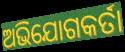
ଅଭିଯୋଗକର୍ତା